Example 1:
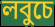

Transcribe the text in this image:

লবুচে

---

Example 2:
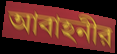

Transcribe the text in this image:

আবাহনীর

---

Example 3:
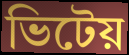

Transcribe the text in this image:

ভিটেয়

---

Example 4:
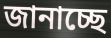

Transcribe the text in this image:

জানাচ্ছে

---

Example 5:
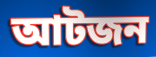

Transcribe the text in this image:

আটজন